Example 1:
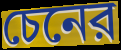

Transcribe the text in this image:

চেনের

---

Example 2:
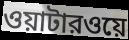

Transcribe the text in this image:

ওয়াটারওয়ে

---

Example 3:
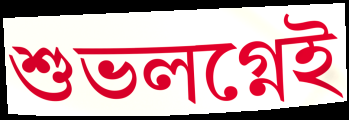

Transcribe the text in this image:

শুভলগ্নেই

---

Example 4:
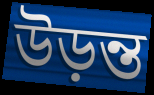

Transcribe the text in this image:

উড়ন্ত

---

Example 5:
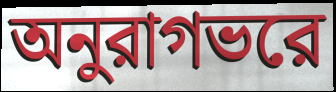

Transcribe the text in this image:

অনুরাগভরে